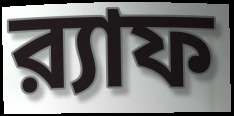
র‍্যাফ